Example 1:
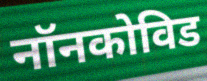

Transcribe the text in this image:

नॉनकोविड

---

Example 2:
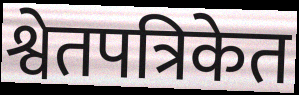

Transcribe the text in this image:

श्वेतपत्रिकेत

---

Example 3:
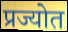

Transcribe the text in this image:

प्रज्योत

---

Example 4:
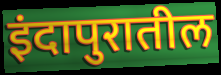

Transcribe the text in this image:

इंदापुरातील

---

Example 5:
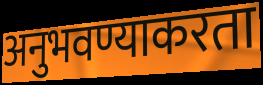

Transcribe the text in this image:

अनुभवण्याकरता